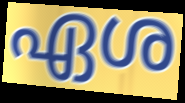
ഏശ